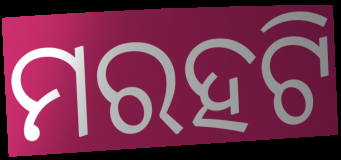
ମରହଟି